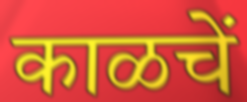
काळचें